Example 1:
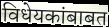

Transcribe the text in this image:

विधेयकांबाबत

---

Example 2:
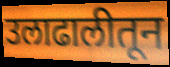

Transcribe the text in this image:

उलाढालीतून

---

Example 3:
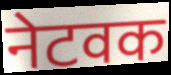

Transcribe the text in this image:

नेटवक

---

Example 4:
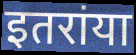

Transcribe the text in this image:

इतरांया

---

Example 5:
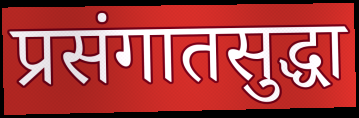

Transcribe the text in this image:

प्रसंगातसुद्धा